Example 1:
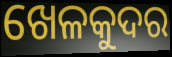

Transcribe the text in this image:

ଖେଳକୁଦର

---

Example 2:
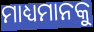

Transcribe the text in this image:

ମାଧ୍ଯମାନକୁ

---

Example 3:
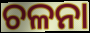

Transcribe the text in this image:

ଚଳନା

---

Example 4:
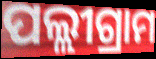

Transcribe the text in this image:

ପଲ୍ଲୀଗ୍ରାମ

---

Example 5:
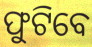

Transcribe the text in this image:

ଫୁଟିବେ